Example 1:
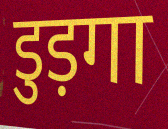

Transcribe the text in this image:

डुड़गा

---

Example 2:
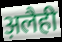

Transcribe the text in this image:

अ़लैही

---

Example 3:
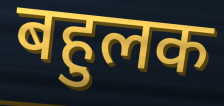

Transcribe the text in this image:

बहुलक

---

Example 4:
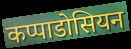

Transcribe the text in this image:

कप्पाडोसियन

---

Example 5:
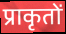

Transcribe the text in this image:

प्राकृतों